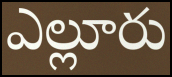
ఎల్లూరు